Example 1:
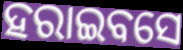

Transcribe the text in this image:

ହରାଇବସେ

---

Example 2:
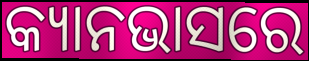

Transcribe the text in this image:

କ୍ୟାନଭାସରେ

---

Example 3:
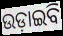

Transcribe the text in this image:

ଉଡ଼ାଇବି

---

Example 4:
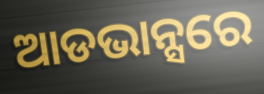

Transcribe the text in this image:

ଆଡଭାନ୍ସରେ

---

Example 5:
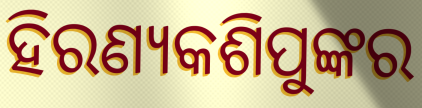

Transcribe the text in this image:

ହିରଣ୍ୟକଶିପୁଙ୍କର